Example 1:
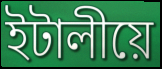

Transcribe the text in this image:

ইটালীয়ে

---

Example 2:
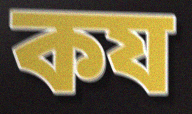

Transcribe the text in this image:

কয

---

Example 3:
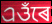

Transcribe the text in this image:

এওঁৰে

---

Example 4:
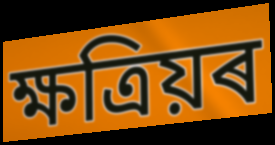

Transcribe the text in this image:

ক্ষত্ৰিয়ৰ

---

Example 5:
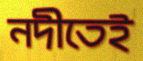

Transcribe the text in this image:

নদীতেই